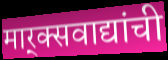
मार्क्सवाद्यांची